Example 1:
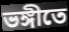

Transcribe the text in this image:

ভঙ্গীতে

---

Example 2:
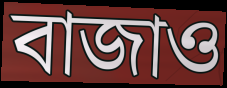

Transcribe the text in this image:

বাজাও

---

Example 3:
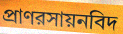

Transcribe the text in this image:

প্রাণরসায়নবিদ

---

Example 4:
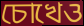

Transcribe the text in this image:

চোখেও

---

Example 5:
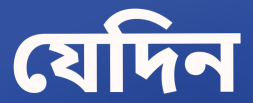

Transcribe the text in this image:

যেদিন